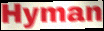
Hyman